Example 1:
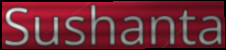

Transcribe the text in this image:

Sushanta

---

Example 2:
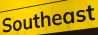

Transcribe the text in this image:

Southeast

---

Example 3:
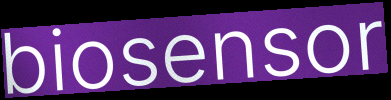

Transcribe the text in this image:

biosensor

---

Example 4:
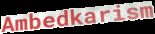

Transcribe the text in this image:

Ambedkarism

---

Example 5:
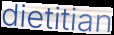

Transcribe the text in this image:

dietitian